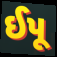
ઈપૂ